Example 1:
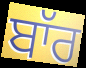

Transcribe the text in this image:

ਬਾੱਰ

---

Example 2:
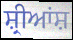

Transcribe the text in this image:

ਸ਼੍ਰੀਆਂਸ਼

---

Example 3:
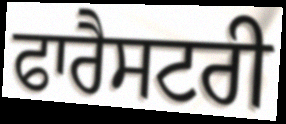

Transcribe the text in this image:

ਫਾਰੈਸਟਰੀ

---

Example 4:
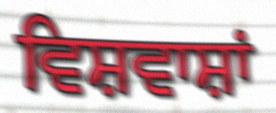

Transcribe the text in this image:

ਵਿਸ਼ਵਾਸ਼ਾਂ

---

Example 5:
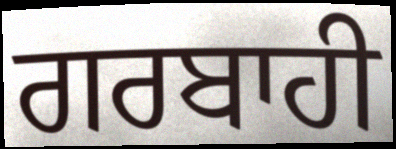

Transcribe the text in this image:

ਗਰਬਾਹੀ